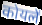
कोयलें